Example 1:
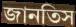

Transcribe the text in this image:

জানতিস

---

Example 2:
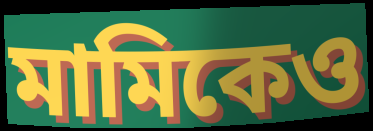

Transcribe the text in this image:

মামিকেও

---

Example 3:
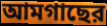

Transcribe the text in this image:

আমগাছের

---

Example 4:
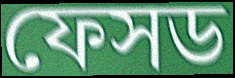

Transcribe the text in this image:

ফেসড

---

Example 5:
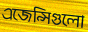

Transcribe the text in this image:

এজেন্সিগুলো